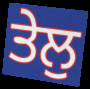
ਤੇਲੁ